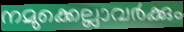
നമുക്കെല്ലാവർക്കും